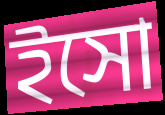
ইসো